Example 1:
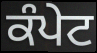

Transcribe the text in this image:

ਕੰਪੇਟ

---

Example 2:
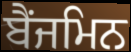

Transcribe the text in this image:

ਬੈਂਜਮਿਨ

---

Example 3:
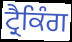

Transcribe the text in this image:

ਟ੍ਰੈਕਿੰਗ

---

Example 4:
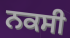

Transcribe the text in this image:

ਨਕਸੀ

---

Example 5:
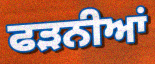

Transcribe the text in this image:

ਫੜਨੀਆਂ